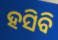
ହସିବି